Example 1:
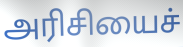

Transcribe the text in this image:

அரிசியைச்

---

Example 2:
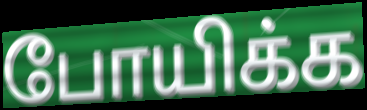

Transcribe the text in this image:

போயிக்க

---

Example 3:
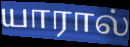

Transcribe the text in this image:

யாரால்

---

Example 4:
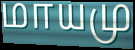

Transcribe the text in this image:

மாயமு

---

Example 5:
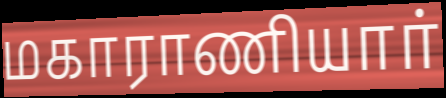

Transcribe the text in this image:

மகாராணியார்